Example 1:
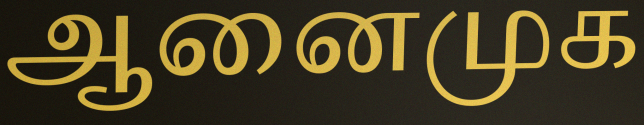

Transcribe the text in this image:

ஆனைமுக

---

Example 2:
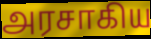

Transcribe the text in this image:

அரசாகிய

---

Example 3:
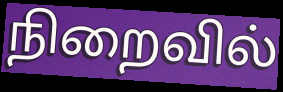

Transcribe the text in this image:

நிறைவில்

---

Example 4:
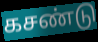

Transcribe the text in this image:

கசண்டு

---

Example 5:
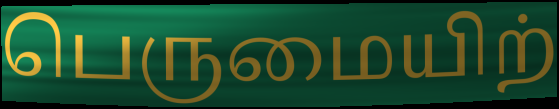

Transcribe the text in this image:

பெருமையிற்